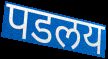
पडलय